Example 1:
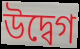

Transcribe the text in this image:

উদ্বেগ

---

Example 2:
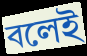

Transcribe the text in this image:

বলেই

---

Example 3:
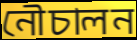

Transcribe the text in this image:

নৌচালন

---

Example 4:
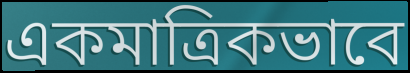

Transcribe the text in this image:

একমাত্রিকভাবে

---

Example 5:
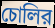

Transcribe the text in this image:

চোলির